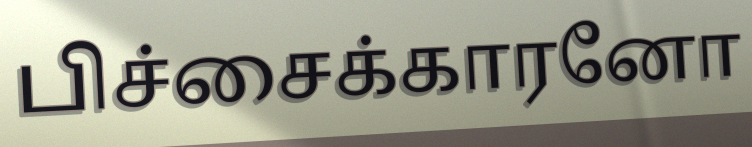
பிச்சைக்காரனோ